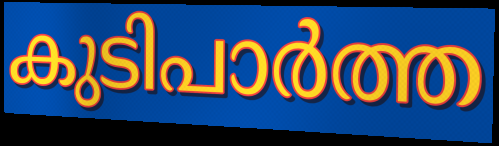
കുടിപാർത്ത